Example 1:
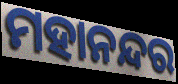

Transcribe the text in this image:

ମହାନନ୍ଦର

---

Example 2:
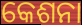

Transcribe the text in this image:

କେଶନା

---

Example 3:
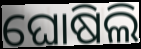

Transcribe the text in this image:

ଘୋଷିଲି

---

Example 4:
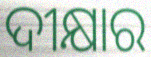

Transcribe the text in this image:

ଦୀକ୍ଷାର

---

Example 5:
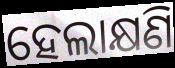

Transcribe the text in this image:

ହେଲାକ୍ଷଣି